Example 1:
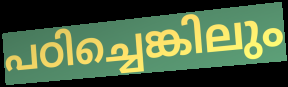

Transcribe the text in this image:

പഠിച്ചെങ്കിലും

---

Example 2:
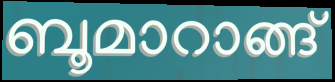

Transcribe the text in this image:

ബൂമാറാങ്ങ്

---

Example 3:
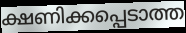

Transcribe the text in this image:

ക്ഷണിക്കപ്പെടാത്ത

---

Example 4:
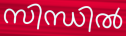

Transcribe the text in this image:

സിന്ധിൽ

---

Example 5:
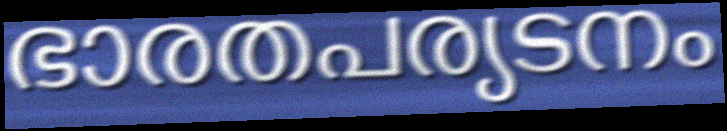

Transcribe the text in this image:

ഭാരതപര്യടനം